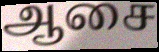
ஆசை